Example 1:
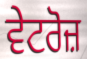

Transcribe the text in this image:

ਵੇਟਰੋਜ਼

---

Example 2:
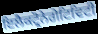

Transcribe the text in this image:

ਇਲੈਕਟ੍ਰੋਨੇਗੇਟਿਵਿਟੀ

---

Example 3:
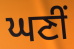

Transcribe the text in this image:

ਘਣੀਂ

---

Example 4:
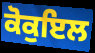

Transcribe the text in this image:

ਕੋਕੁਇਲ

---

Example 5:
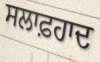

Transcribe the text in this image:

ਸਲਾਫ਼ਹਾਦ